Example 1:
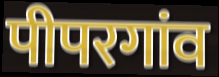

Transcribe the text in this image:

पीपरगांव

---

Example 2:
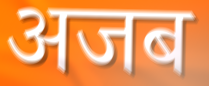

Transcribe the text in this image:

अजब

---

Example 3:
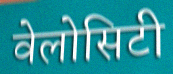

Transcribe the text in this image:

वेलोसिटी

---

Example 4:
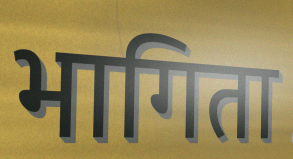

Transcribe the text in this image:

भागिता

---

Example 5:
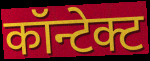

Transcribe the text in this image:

कॉन्टेक्ट